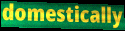
domestically